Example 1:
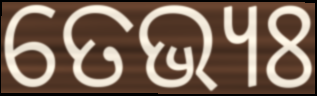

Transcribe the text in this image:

ତେଭ୍ୟଃ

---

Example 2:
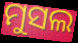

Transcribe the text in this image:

ମୁସଲ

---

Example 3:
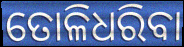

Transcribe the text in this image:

ତୋଳିଧରିବା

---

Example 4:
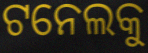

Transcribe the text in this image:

ଟନେଲକୁ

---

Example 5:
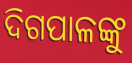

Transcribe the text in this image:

ଦିଗପାଳଙ୍କୁ